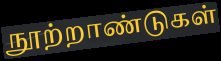
நூற்றாண்டுகள்